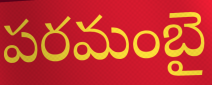
పరమంబై